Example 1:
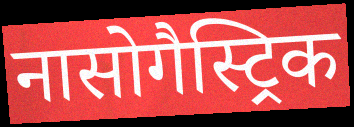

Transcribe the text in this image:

नासोगैस्ट्रिक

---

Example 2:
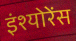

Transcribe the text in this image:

इंश्योरेंस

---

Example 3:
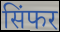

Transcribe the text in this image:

सिंफर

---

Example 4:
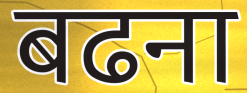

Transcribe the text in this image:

बढना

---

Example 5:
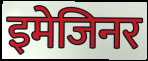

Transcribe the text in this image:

इमेजिनर